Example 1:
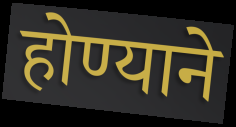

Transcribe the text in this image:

होण्याने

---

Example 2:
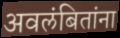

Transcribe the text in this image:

अवलंबितांना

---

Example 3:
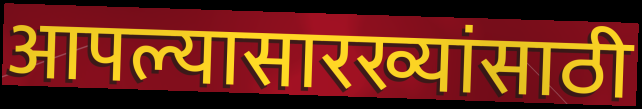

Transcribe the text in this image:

आपल्यासारख्यांसाठी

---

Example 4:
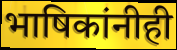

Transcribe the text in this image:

भाषिकांनीही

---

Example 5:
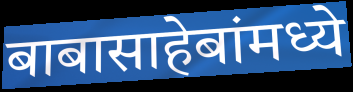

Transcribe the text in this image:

बाबासाहेबांमध्ये